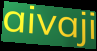
aivaji